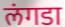
लंगडा